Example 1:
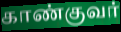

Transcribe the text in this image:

காண்குவர்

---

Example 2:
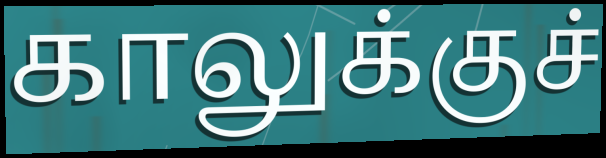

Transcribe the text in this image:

காலுக்குச்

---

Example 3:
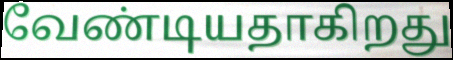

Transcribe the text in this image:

வேண்டியதாகிறது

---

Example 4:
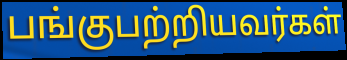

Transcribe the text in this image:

பங்குபற்றியவர்கள்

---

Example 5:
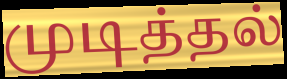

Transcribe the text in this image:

முடித்தல்